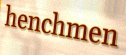
henchmen